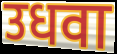
उधवा